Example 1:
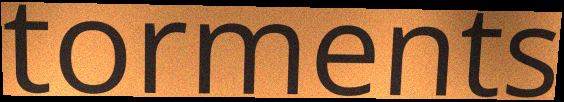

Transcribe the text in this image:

torments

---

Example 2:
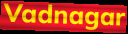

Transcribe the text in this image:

Vadnagar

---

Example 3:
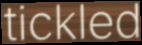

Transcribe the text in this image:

tickled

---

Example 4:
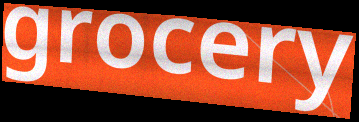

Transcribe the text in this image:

grocery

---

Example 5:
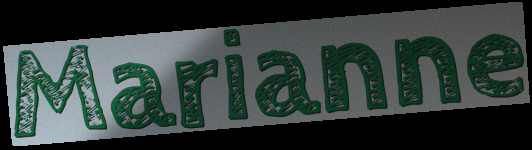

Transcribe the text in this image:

Marianne